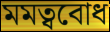
মমত্ববোধ